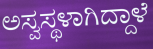
ಅಸ್ವಸ್ಥಳಾಗಿದ್ದಾಳೆ